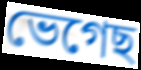
ভেগেছ